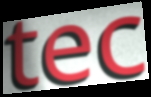
tec